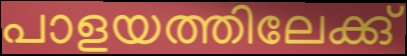
പാളയത്തിലേക്കു്